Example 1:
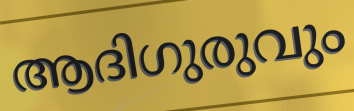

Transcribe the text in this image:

ആദിഗുരുവും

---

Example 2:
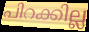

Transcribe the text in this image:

പിറക്കില്ല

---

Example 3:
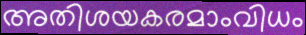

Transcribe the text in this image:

അതിശയകരമാംവിധം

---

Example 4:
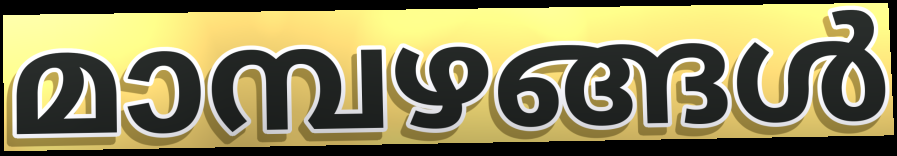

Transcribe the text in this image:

മാമ്പഴങ്ങൾ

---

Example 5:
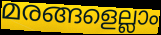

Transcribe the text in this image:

മരങ്ങളെല്ലാം